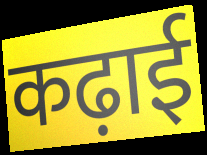
कढ़ाई